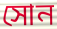
সোন